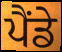
ਪੈਂਡੇ